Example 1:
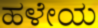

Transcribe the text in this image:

ಹಳೇಯ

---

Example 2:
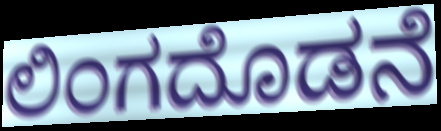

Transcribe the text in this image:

ಲಿಂಗದೊಡನೆ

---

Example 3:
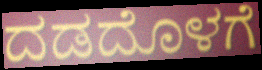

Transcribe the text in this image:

ದಡದೊಳಗೆ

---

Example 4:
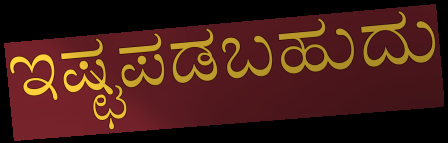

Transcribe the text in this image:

ಇಷ್ಟಪಡಬಹುದು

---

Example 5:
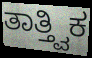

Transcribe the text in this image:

ತಾತ್ತ್ವಿಕ